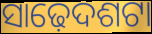
ସାଢ଼େଦଶଟା